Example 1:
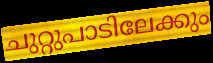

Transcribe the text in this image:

ചുറ്റുപാടിലേക്കും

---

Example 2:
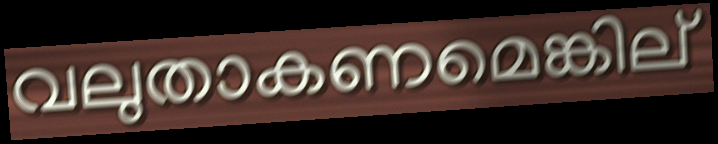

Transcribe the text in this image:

വലുതാകണമെങ്കില്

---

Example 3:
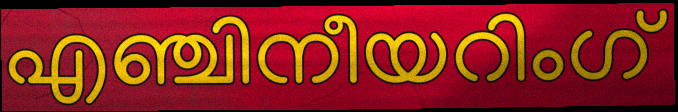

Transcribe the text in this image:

എഞ്ചിനീയറിംഗ്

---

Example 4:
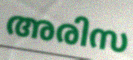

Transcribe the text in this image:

അരിസ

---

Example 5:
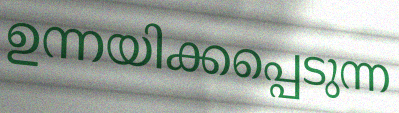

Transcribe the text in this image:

ഉന്നയിക്കപ്പെടുന്ന